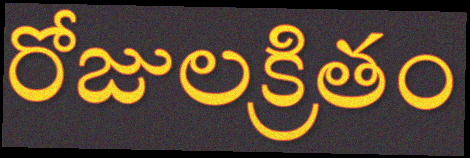
రోజులక్రితం